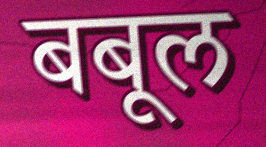
बबूल